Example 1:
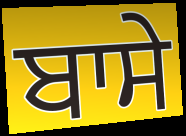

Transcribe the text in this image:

ਬਾਸੇ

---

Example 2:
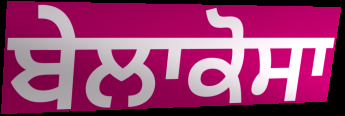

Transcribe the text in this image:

ਬੇਲਾਕੋਸਾ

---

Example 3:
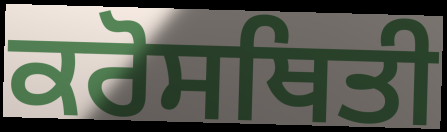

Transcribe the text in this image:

ਕਰੋਸਥਿਤੀ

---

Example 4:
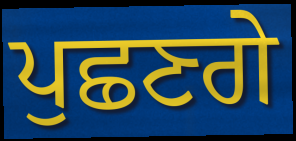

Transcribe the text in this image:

ਪੁਛਣਗੇ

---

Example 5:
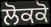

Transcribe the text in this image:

ਲੋਕਕੋ